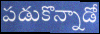
పడుకొన్నాడో